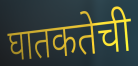
घातकतेची